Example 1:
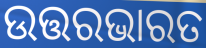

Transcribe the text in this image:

ଉତ୍ତରଭାରତ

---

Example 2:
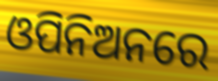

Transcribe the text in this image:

ଓପିନିଅନରେ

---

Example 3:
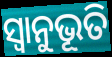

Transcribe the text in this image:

ସ୍ଵାନୁଭୂତି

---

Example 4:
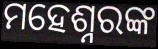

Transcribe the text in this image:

ମହେଶ୍ନରଙ୍କ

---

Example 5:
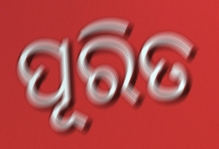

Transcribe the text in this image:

ପୂରିତ